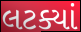
લટક્યાં